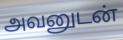
அவனுடன்